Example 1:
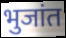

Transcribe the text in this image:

भुजांत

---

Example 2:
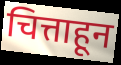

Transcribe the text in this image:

चित्ताहून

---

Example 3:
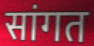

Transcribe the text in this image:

सांगत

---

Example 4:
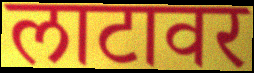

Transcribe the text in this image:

लाटावर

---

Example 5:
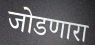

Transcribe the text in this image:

जोडणारा